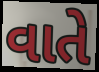
વાતે